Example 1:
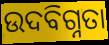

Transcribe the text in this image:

ଉଦବିଗ୍ନତା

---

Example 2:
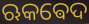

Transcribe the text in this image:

ଋକଵେଦ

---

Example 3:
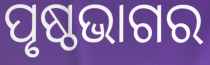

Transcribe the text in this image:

ପୃଷ୍ଠଭାଗର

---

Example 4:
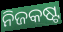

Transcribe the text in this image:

ନିଜକଷ୍ଟ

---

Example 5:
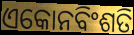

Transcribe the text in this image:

ଏକୋନବିଂଶତି